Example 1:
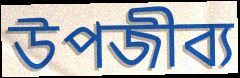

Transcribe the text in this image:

উপজীব্য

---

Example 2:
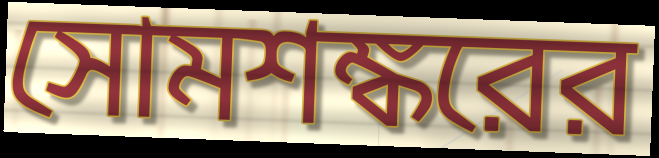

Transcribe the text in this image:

সোমশঙ্করের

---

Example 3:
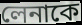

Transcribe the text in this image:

লেনাকে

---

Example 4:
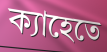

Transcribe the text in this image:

ক্যাহেতে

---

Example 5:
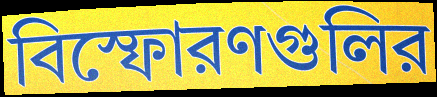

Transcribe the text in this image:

বিস্ফোরণগুলির